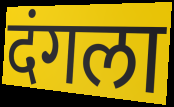
दंगला